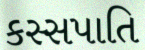
કસ્સપાતિ